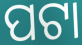
ପଟା